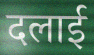
दलाई